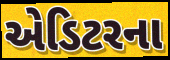
એડિટરના